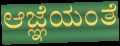
ಆಜ್ಞೆಯಂತೆ